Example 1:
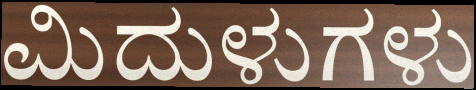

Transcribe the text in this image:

ಮಿದುಳುಗಳು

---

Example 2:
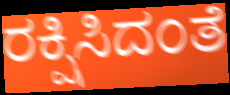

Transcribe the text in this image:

ರಕ್ಷಿಸಿದಂತೆ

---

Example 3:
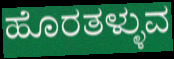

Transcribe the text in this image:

ಹೊರತಳ್ಳುವ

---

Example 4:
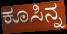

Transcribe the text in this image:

ಕೂಸಿನ್ನ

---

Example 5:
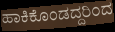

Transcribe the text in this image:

ಹಾಕಿಕೊಂಡದ್ದರಿಂದ